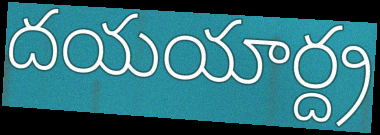
దయయార్ద్ర